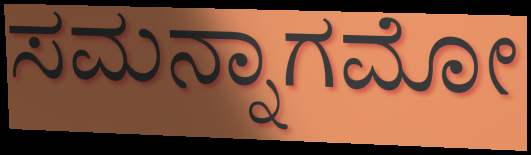
ಸಮನ್ನಾಗಮೋ